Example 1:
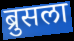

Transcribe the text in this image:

ब्रुसला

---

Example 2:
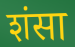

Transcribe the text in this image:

शंसा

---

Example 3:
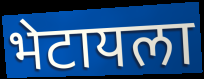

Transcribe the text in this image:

भेटायला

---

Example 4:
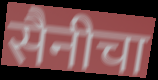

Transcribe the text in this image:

सैनीचा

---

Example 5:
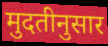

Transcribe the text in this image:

मुदतीनुसार